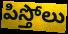
పిస్తోలు